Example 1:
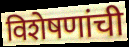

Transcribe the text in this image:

विशेषणांची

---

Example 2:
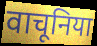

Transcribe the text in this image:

वाचूनिया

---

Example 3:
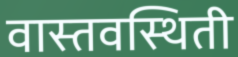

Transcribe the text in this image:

वास्तवस्थिती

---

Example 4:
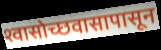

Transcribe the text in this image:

श्वासोच्छवासापासून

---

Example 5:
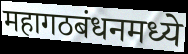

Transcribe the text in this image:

महागठबंधनमध्ये